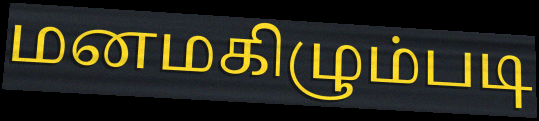
மனமகிழும்படி